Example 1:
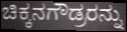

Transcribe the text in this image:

ಚಿಕ್ಕನಗೌಡ್ರರನ್ನು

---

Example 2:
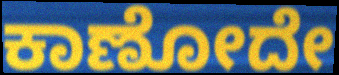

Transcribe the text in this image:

ಕಾಣೋದೇ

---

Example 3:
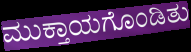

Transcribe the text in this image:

ಮುಕ್ತಾಯಗೊಂಡಿತು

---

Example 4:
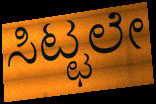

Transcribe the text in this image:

ಸಿಟ್ಟಲೇ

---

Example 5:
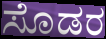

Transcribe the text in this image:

ಸೊಡರ